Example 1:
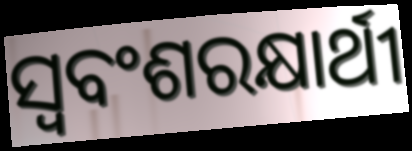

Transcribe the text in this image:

ସ୍ବବଂଶରକ୍ଷାର୍ଥୀ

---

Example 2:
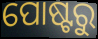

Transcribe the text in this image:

ପୋଷ୍ଟରୁ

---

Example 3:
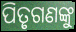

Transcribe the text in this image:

ପିତୃଗଣଙ୍କୁ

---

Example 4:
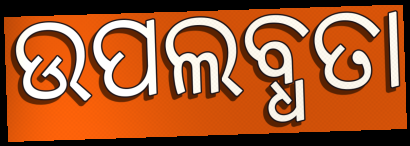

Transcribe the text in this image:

ଉପଲବ୍ଧତା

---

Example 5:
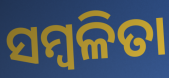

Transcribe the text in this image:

ସମ୍ବଳିତା